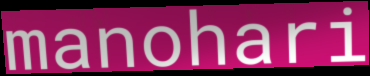
manohari